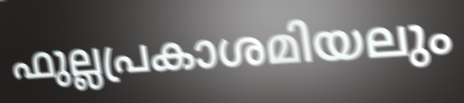
ഫുല്ലപ്രകാശമിയലും